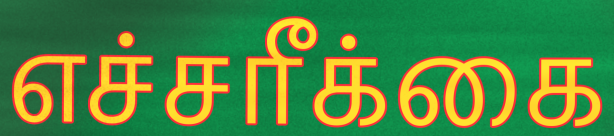
எச்சரீக்கை